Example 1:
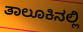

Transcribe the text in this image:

ತಾಲೂಕಿನಲ್ಲಿ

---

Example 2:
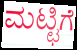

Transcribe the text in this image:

ಮಟ್ಟಿಗೆ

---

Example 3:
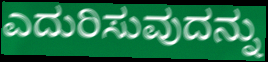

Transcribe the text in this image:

ಎದುರಿಸುವುದನ್ನು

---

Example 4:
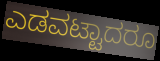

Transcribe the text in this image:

ಎಡವಟ್ಟಾದರೂ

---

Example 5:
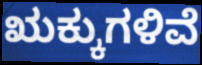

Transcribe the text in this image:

ಋಕ್ಕುಗಳಿವೆ